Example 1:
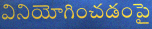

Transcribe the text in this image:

వినియోగించడంపై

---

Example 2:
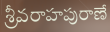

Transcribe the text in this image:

శ్రీవరాహపురాణే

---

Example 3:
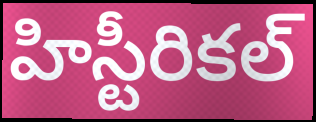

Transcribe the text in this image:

హిస్టీరికల్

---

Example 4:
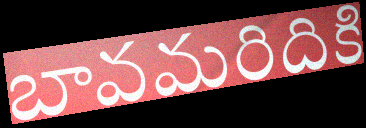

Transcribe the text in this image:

బావమరిదికి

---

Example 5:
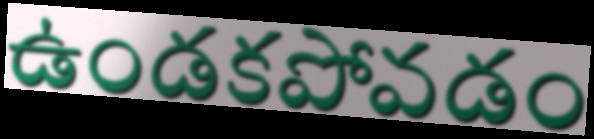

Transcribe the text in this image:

ఉండకపోవడం